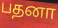
பதனா